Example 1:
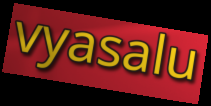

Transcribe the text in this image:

vyasalu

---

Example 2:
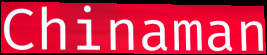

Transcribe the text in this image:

Chinaman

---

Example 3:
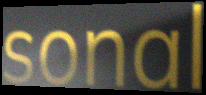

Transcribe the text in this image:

sonal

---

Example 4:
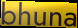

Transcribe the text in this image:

bhuna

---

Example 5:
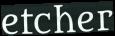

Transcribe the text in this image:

etcher